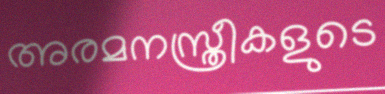
അരമനസ്ത്രീകളുടെ